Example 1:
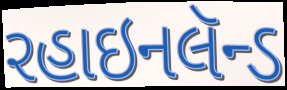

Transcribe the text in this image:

રહાઇનલૅન્ડ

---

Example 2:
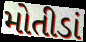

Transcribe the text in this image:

મોતીડાં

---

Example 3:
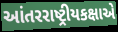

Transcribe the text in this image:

આંતરરાષ્ટ્રીયકક્ષાએ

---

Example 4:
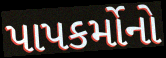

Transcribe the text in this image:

પાપકર્મોનો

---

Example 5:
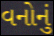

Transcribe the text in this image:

વનોનું